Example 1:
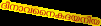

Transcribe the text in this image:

ദീനാവനൈകദയനീയ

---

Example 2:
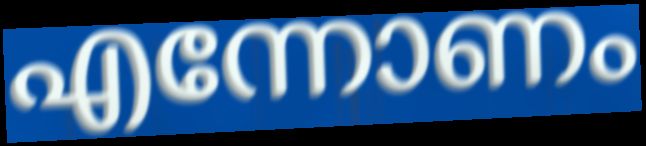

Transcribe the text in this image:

എന്നോണം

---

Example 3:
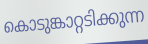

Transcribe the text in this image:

കൊടുങ്കാറ്റടിക്കുന്ന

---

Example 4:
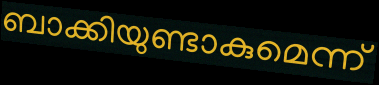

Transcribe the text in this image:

ബാക്കിയുണ്ടാകുമെന്ന്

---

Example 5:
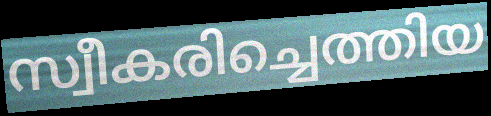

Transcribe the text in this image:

സ്വീകരിച്ചെത്തിയ